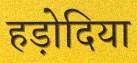
हड़ोदिया